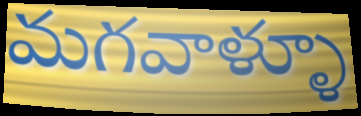
మగవాళ్ళూ